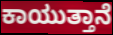
ಕಾಯುತ್ತಾನೆ